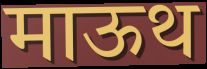
माऊथ